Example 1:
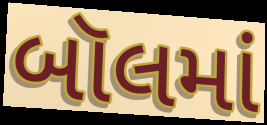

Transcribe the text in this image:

બૉલમાં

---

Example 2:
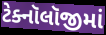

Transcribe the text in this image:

ટેક્નૉલૉજીમાં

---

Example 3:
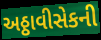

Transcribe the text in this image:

અઠ્ઠાવીસેકની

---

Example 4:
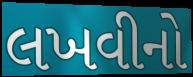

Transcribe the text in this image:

લખવીનો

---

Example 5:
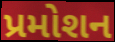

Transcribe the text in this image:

પ્રમોશન